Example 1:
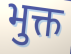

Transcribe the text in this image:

भुक्त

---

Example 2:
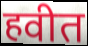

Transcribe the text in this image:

हवीत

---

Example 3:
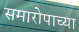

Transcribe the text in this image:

समारोपाच्या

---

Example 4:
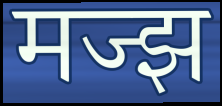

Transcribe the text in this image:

मज्झ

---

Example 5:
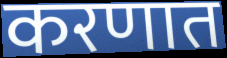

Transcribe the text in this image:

करणात